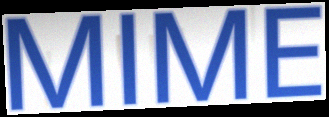
MIME